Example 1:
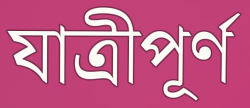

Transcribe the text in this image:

যাত্রীপূর্ণ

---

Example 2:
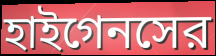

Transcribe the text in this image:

হাইগেনসের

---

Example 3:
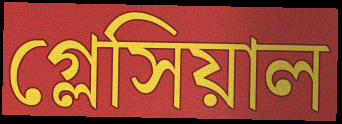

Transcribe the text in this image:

গ্লেসিয়াল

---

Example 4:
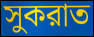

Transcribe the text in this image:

সুকরাত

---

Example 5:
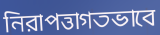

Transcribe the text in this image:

নিরাপত্তাগতভাবে